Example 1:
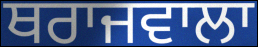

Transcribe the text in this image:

ਥਰਾਜਵਾਲਾ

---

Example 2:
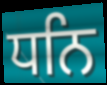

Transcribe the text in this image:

ਧਨਿ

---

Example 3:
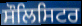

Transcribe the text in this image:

ਸੌਲਿਸਿਟਰ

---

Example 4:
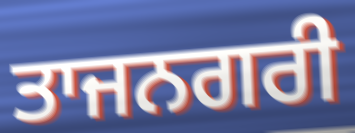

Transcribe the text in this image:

ਤਾਜਨਗਰੀ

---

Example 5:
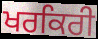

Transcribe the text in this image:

ਖਰਕਿਰੀ